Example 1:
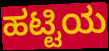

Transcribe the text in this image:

ಹಟ್ಟಿಯ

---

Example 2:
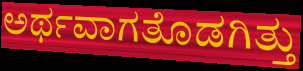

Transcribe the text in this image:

ಅರ್ಥವಾಗತೊಡಗಿತ್ತು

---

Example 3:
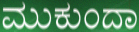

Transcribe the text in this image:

ಮುಕುಂದಾ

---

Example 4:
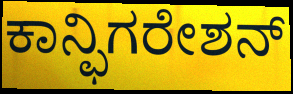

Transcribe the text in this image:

ಕಾನ್ಫಿಗರೇಶನ್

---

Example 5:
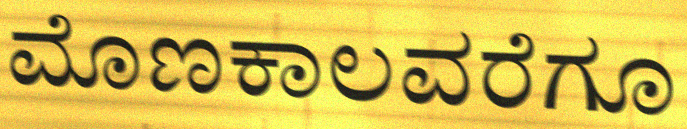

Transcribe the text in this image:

ಮೊಣಕಾಲವರೆಗೂ